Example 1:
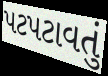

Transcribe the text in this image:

પટપટાવતું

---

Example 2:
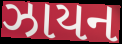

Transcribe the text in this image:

ઝાયન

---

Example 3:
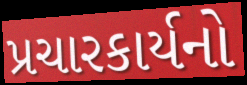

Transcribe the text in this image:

પ્રચારકાર્યનો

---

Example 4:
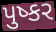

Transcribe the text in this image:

પુષ્કર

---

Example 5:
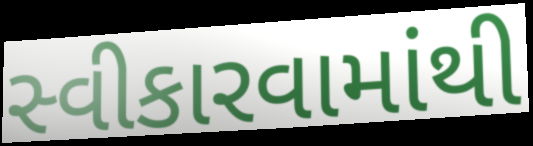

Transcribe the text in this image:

સ્વીકારવામાંથી